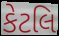
કેટલિ